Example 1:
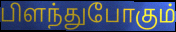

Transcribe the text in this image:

பிளந்துபோகும்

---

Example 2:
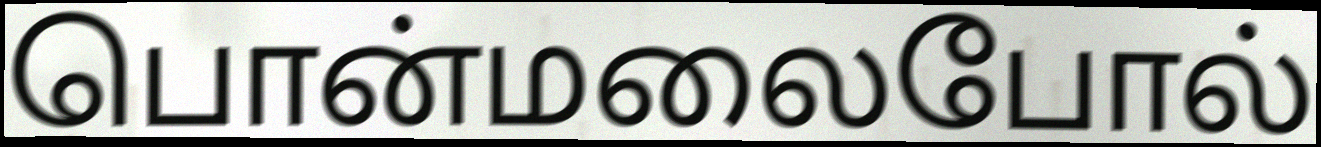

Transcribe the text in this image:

பொன்மலைபோல்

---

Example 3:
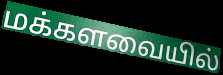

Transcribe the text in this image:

மக்களவையில்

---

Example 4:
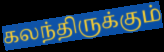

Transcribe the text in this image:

கலந்திருக்கும்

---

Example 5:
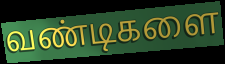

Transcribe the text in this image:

வண்டிகளை